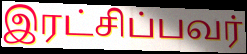
இரட்சிப்பவர்